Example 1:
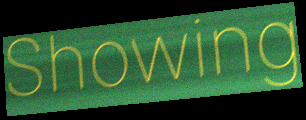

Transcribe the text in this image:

Showing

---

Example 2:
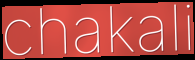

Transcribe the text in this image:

chakali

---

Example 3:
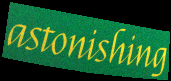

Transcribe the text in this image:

astonishing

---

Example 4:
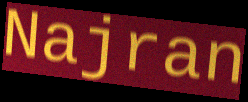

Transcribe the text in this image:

Najran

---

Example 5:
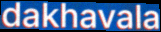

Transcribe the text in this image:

dakhavala